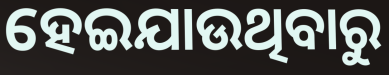
ହେଇଯାଉଥିବାରୁ